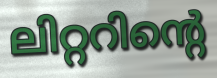
ലിറ്ററിന്റെ